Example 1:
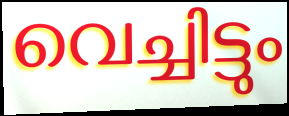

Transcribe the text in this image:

വെച്ചിട്ടും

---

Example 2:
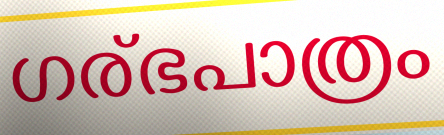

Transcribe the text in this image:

ഗര്ഭപാത്രം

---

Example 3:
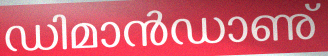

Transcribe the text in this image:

ഡിമാൻഡാണു്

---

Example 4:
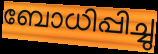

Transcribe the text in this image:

ബോധിപ്പിച്ചു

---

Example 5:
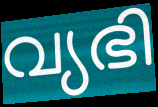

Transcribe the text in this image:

വ്യഭി